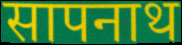
सापनाथ